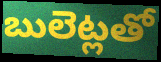
బులెట్లతో